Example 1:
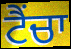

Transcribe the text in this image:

ਟੈਂਚਾ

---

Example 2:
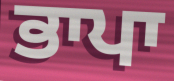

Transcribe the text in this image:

ਭਾਪਾ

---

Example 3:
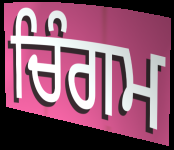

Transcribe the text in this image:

ਚਿੰਗਮ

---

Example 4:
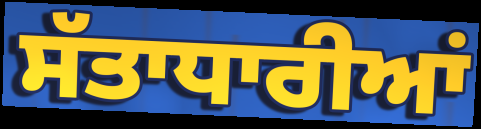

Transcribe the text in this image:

ਸੱਤਾਧਾਰੀਆਂ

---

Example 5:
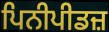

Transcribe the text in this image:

ਪਿਨੀਪੀਡਜ਼